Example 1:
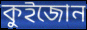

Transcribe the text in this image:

কুইজোন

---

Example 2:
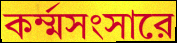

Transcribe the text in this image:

কর্ম্মসংসারে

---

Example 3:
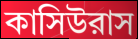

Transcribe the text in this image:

কাসিউরাস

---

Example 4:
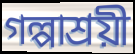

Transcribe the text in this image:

গল্পাশ্রয়ী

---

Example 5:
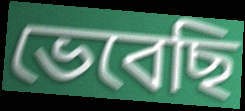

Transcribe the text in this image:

ভেবেছি